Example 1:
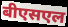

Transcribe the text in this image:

बीएसएल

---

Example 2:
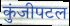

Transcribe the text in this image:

कुंजीपटल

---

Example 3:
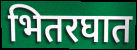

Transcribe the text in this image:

भितरघात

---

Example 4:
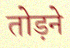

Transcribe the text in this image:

तोड़ने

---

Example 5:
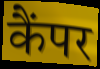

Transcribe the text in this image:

कैंपर